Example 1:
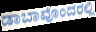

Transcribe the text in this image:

ಡಾಬಾವೊಂದರಲ್ಲಿ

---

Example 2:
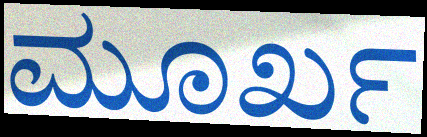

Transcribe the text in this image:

ಮೂರ್ಖ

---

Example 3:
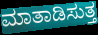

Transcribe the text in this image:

ಮಾತಾಡಿಸುತ್ತ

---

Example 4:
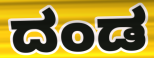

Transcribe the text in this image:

ದಂಡ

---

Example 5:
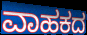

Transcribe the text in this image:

ವಾಹಕದ